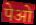
पेओ